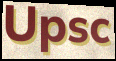
Upsc